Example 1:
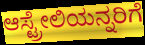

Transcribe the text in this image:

ಆಸ್ಟ್ರೇಲಿಯನ್ನರಿಗೆ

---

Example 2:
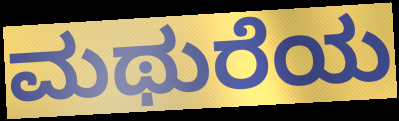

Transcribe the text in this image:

ಮಥುರೆಯ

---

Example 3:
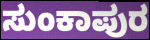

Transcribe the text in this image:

ಸುಂಕಾಪುರ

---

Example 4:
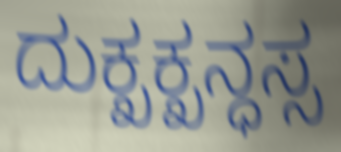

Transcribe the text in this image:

ದುಕ್ಖಕ್ಖನ್ಧಸ್ಸ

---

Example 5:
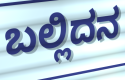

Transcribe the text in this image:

ಬಲ್ಲಿದನ